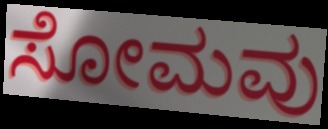
ಸೋಮವು